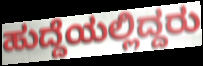
ಹುದ್ದೆಯಲ್ಲಿದ್ದರು